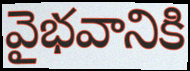
వైభవానికి